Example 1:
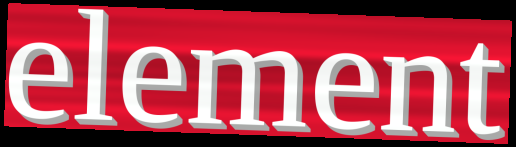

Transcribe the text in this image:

element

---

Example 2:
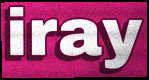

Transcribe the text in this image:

iray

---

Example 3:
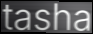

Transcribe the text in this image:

tasha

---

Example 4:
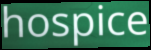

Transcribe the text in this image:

hospice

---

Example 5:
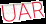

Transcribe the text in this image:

UAR